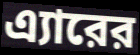
এ্যারের